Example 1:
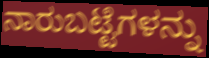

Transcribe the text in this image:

ನಾರುಬಟ್ಟೆಗಳನ್ನು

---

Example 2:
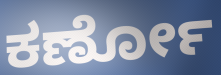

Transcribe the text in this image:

ಕರ್ಣೋ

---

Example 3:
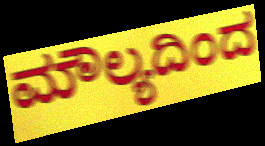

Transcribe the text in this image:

ಮೌಲ್ಯದಿಂದ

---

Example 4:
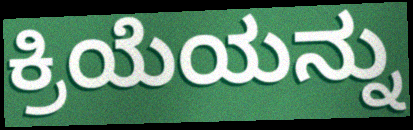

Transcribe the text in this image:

ಕ್ರಿಯೆಯನ್ನು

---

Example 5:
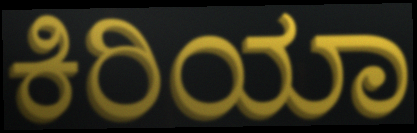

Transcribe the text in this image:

ಕಿರಿಯಾ